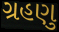
ગ્રહણુ